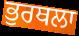
ਭੁਰਥਲਾ